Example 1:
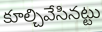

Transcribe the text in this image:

కూల్చివేసినట్టు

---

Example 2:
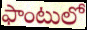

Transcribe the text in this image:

ఫాంటులో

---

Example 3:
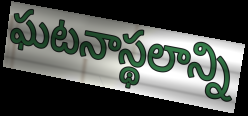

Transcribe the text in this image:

ఘటనాస్థలాన్ని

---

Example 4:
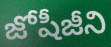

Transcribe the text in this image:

జోషీజీని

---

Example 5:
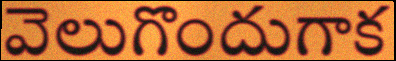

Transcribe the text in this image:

వెలుగొందుగాక